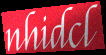
nhidcl